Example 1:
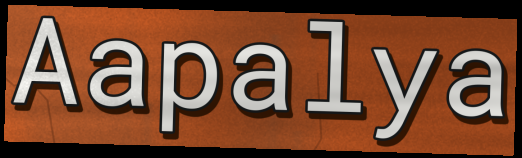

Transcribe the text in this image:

Aapalya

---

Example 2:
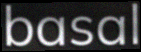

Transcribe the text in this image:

basal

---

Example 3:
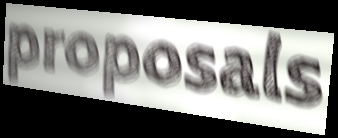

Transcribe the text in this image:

proposals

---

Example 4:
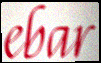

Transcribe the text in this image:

ebar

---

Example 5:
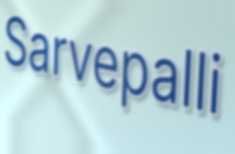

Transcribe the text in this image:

Sarvepalli